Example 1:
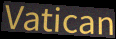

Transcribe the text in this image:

Vatican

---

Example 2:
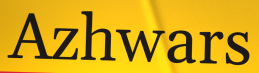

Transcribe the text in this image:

Azhwars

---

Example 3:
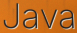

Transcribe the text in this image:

Java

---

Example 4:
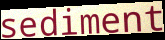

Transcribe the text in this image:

sediment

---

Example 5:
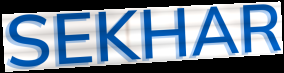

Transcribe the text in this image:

SEKHAR